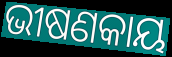
ଭୀଷଣକାୟ